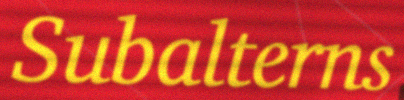
Subalterns